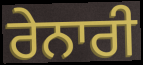
ਰੇਨਾਰੀ